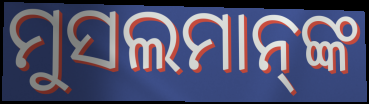
ମୁସଲମାନ୍‍ଙ୍କ